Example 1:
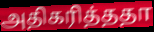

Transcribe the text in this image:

அதிகரித்ததா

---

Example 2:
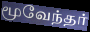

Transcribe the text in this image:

மூவேந்தர்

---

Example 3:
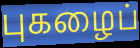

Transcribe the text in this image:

புகழைப்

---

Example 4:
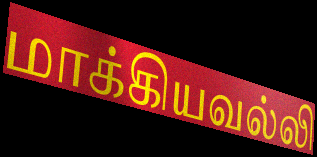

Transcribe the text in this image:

மாக்கியவல்லி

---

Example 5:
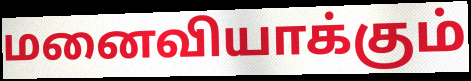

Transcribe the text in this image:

மனைவியாக்கும்